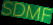
SDMF